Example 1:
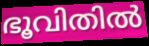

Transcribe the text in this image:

ഭൂവിതിൽ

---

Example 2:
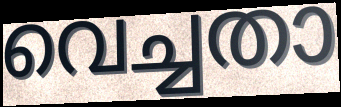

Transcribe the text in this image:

വെച്ചതാ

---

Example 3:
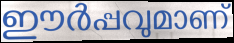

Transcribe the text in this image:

ഈർപ്പവുമാണ്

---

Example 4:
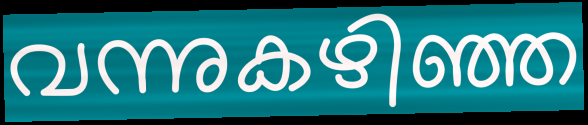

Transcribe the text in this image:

വന്നുകഴിഞ്ഞ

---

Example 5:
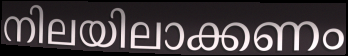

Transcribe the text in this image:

നിലയിലാക്കണം